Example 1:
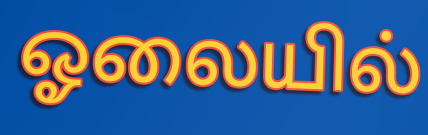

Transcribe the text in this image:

ஓலையில்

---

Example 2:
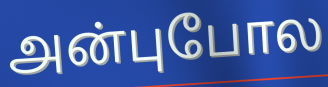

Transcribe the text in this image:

அன்புபோல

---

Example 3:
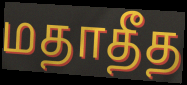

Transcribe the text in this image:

மதாதீத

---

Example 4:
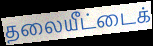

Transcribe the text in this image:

தலையீட்டைக்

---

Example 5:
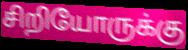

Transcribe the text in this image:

சிறியோருக்கு